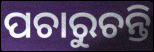
ପଚାରୁଚନ୍ତି